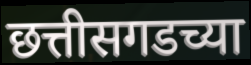
छत्तीसगडच्या